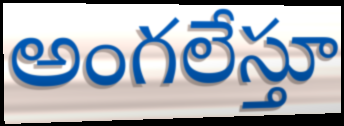
అంగలేస్తూ